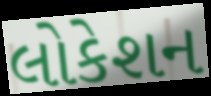
લોકેશન